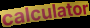
calculator